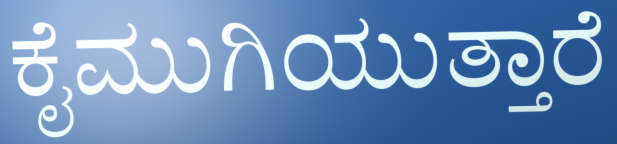
ಕೈಮುಗಿಯುತ್ತಾರೆ